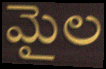
మైల